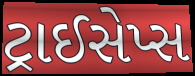
ટ્રાઈસેપ્સ